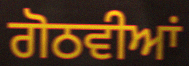
ਗੋਠਵੀਆਂ